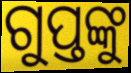
ଗୁପ୍ତଙ୍କୁ